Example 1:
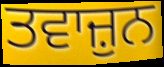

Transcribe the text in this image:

ਤਵਾਜ਼ੁਨ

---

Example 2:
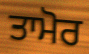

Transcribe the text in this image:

ਤਾਮੋਰ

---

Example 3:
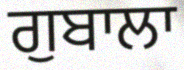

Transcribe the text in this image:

ਗੁਬਾਲਾ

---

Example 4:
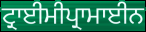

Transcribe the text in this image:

ਟ੍ਰਾਈਮੀਪ੍ਰਾਮਾਈਨ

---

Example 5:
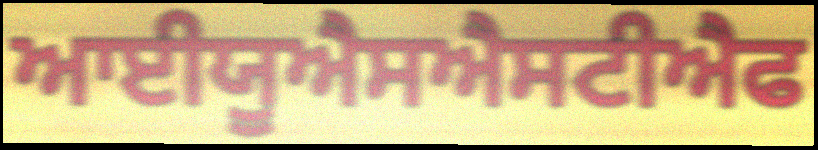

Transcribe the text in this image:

ਆਈਯੂਐਸਐਸਟੀਐਫ